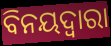
ବିନୟଦ୍ବାରା